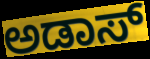
ಅಡಾಸ್